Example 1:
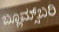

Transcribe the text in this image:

ಬ್ಲೂಮ್ಸ್‌ಬರಿ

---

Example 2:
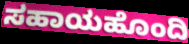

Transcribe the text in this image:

ಸಹಾಯಹೊಂದಿ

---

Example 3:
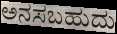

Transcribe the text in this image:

ಅನಸಬಹುದು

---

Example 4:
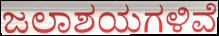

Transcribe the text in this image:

ಜಲಾಶಯಗಳಿವೆ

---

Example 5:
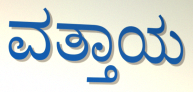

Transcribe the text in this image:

ವತ್ತಾಯ